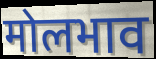
मोलभाव